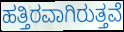
ಹತ್ತಿರವಾಗಿರುತ್ತವೆ